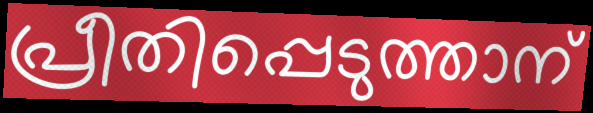
പ്രീതിപ്പെടുത്താന്